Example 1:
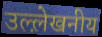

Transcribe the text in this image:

उल्ल़ेखनीय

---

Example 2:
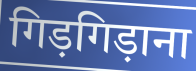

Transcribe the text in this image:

गिड़गिड़ाना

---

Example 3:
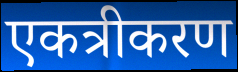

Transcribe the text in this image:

एकत्रीकरण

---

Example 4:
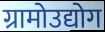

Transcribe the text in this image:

ग्रामोउद्योग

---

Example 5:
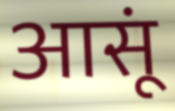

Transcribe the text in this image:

आसूं